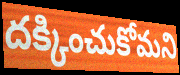
దక్కించుకోమని